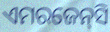
ଏମରଜେନ୍‌ସି